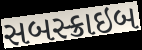
સબસ્ક્રાઇબ